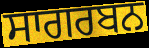
ਸਾਗਰਬਨ